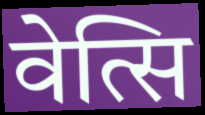
वेत्सि